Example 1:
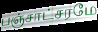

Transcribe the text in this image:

பஞ்சாட்சரமே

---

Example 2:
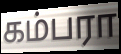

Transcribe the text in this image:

கம்பரா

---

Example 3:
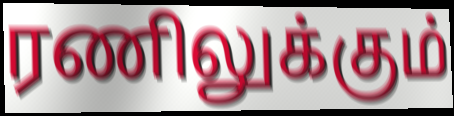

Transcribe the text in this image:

ரணிலுக்கும்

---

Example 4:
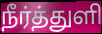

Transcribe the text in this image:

நீர்த்துளி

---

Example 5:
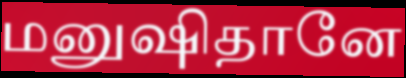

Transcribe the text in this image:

மனுஷிதானே